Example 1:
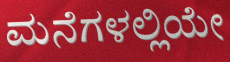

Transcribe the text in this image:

ಮನೆಗಳಲ್ಲಿಯೇ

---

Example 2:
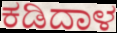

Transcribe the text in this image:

ಕಡಿದಾಳ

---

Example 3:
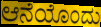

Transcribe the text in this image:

ಆನೆಯೊಂದು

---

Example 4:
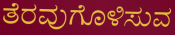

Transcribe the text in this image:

ತೆರವುಗೊಳಿಸುವ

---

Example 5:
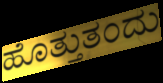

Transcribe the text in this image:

ಹೊತ್ತುತಂದು